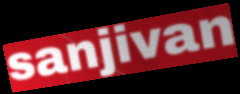
sanjivan